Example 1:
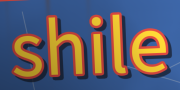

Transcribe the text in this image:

shile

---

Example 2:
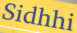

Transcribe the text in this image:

Sidhhi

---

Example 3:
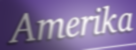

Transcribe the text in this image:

Amerika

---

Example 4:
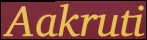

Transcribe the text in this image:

Aakruti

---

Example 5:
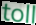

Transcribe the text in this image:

toll